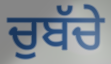
ਚੁਬੱਚੇ